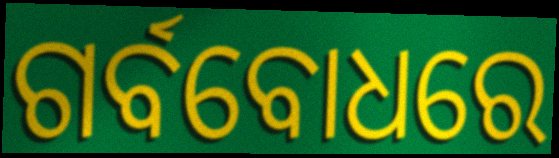
ଗର୍ବବୋଧରେ